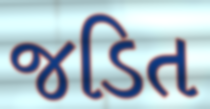
જડિત